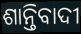
ଶାନ୍ତିବାଦୀ